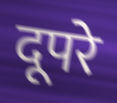
दूपरे